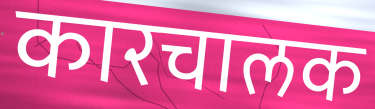
कारचालक